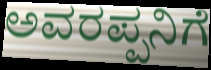
ಅವರಪ್ಪನಿಗೆ